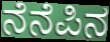
ನೆನೆಪಿನ